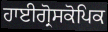
ਹਾਈਗ੍ਰੋਸਕੋਪਿਕ